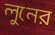
লুনের